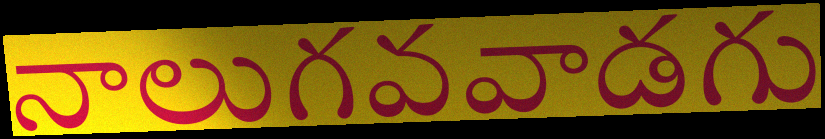
నాలుగవవాడగు